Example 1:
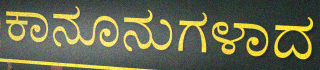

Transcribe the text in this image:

ಕಾನೂನುಗಳಾದ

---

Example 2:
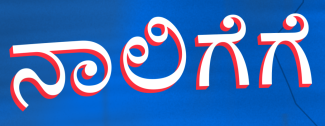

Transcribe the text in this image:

ನಾಲಿಗೆಗೆ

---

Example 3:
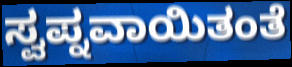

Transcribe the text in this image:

ಸ್ವಪ್ನವಾಯಿತಂತೆ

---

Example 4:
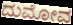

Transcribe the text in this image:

ದುಮೋವ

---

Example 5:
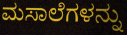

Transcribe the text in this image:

ಮಸಾಲೆಗಳನ್ನು